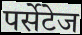
पर्सेटेज